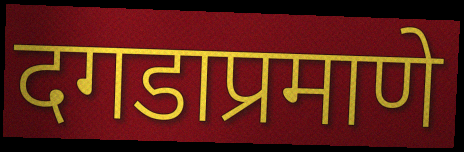
दगडाप्रमाणे